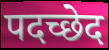
पदच्छेद